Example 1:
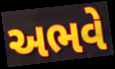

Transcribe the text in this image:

અભવે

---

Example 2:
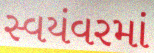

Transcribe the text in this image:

સ્વયંવરમાં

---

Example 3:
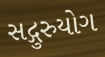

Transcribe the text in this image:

સદ્ગુરુયોગ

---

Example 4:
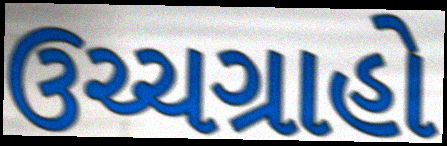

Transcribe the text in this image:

ઉચ્ચગ્રાહો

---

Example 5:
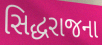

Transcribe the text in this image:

સિદ્ધરાજના